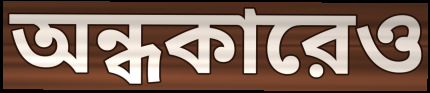
অন্ধকারেও